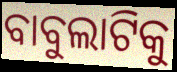
ବାବୁଲାଟିକୁ